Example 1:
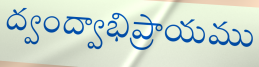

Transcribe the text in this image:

ద్వంద్వాభిప్రాయము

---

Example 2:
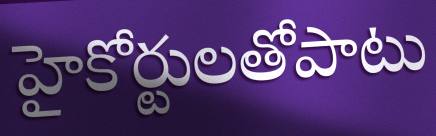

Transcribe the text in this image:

హైకోర్టులతోపాటు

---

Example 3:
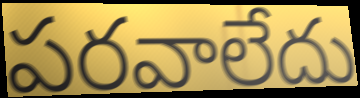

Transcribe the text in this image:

పరవాలేదు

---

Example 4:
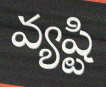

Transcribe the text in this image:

వ్యష్టి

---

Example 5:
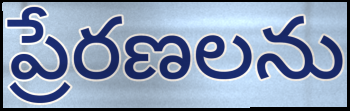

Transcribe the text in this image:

ప్రేరణలను